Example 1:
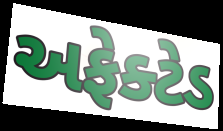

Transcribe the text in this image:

અફેક્ટેડ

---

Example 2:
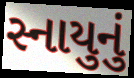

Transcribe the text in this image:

સ્નાયુનું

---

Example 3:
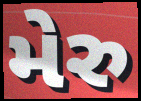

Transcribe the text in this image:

મેરુ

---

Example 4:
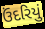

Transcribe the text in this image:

ઉંદરિયું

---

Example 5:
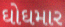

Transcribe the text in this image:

ઘોઘમાર